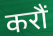
करौं